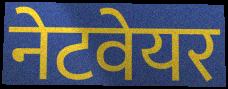
नेटवेयर